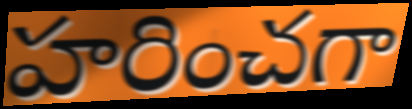
హరించగా